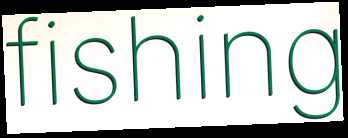
fishing